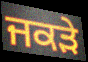
ਜਕੜੇ